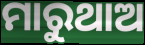
ମାରୁଥାଅ